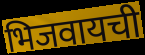
भिजवायची